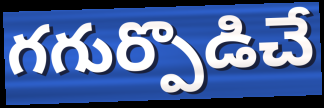
గగుర్పొడిచే